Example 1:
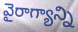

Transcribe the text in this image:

వైరాగ్యాన్ని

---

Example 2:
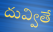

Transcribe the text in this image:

దువ్వితే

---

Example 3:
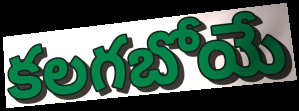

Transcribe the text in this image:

కలగబోయే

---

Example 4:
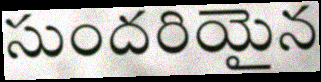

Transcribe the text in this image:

సుందరియైన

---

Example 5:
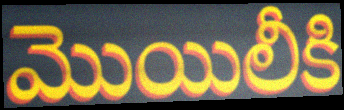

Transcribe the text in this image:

మొయిలీకి